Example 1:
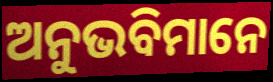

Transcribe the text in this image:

ଅନୁଭବିମାନେ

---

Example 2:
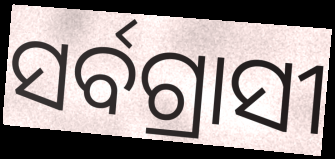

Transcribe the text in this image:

ସର୍ବଗ୍ରାସୀ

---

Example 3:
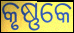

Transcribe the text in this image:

କୃଷ୍ଣକେ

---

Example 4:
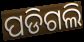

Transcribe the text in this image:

ପଡିଗଲି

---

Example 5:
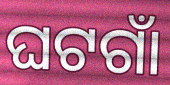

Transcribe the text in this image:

ଘଟଗାଁ